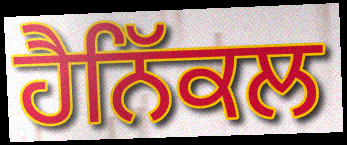
ਹੈਨਿੱਕਲ